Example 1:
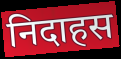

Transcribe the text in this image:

निदाहस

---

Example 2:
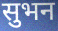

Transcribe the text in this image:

सुभन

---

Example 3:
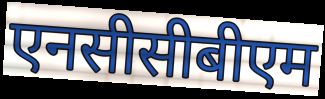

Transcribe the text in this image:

एनसीसीबीएम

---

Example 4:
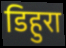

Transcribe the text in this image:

डिहुरा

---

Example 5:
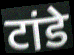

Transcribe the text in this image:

टांडे